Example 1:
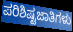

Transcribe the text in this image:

ಪರಿಶಿಷ್ಟಜಾತಿಗಳು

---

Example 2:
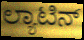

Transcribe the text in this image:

ಲ್ಯಾಟಿನ್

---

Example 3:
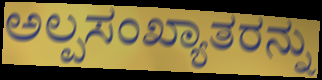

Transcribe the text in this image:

ಅಲ್ಪಸಂಖ್ಯಾತರನ್ನು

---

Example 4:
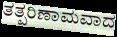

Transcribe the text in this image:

ತತ್ಪರಿಣಾಮವಾದ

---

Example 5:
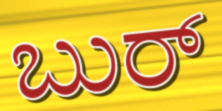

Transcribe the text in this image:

ಬುರ್